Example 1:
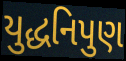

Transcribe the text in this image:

યુદ્ધનિપુણ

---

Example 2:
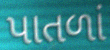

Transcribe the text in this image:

પાતળાં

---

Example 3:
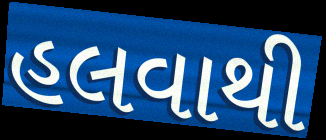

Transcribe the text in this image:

હલવાથી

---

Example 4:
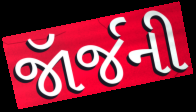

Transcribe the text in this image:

જૉર્જની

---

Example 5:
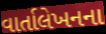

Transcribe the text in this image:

વાર્તાલેખનના